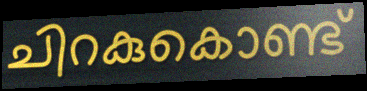
ചിറകുകൊണ്ട്